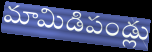
మామిడిపండ్లు